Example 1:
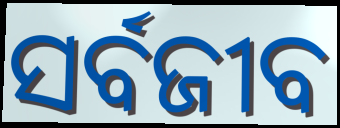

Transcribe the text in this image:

ସର୍ବଜୀବ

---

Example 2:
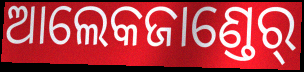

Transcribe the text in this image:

ଆଲେକଜାଣ୍ଡେର୍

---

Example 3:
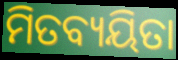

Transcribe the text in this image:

ମିତବ୍ୟୟିତା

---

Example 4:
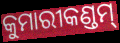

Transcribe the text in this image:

କୁମାରୀକଣ୍ଡମ୍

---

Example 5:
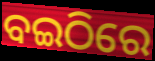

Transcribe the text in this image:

ବଇଠିରେ